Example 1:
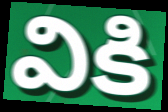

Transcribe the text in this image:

వికి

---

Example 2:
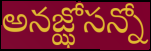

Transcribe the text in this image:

అనజ్ఝోసన్నో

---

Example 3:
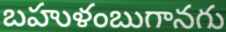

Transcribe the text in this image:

బహుళంబుగానగు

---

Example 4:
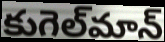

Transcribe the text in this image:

కుగెల్‌మాన్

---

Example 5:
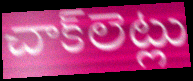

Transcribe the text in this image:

చాక్‌లెట్లు